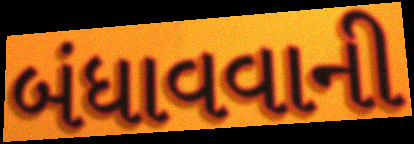
બંધાવવાની